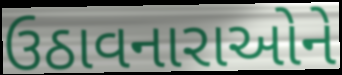
ઉઠાવનારાઓને